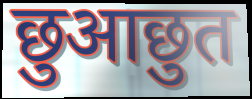
छुआछुत